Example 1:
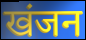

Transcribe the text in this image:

खंजन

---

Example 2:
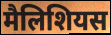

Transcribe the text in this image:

मैलिशियस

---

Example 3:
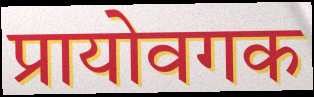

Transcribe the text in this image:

प्रायोवगक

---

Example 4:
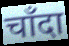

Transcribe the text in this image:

चाँदा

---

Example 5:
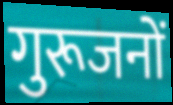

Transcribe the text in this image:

गुरूजनों